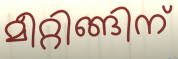
മീറ്റിങ്ങിന്